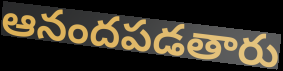
ఆనందపడతారు